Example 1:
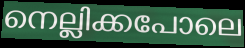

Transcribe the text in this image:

നെല്ലിക്കപോലെ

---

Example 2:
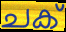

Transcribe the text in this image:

ചക്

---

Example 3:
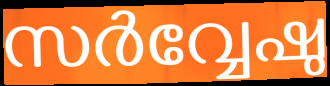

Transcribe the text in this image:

സർവ്വേഷു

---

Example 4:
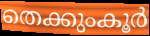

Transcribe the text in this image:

തെക്കുംകൂർ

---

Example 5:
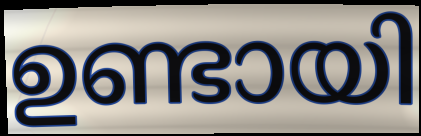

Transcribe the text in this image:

ഉണ്ടായി